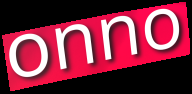
onno